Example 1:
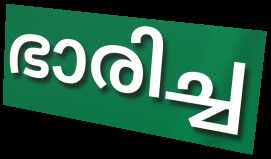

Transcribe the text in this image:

ഭാരിച്ച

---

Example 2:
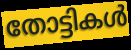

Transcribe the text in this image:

തോട്ടികൾ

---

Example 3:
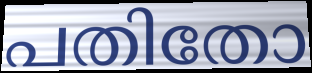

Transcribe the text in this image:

പതിതോ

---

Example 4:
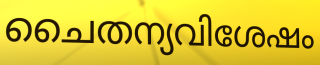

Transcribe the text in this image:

ചൈതന്യവിശേഷം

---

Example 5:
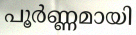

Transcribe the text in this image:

പൂർണ്ണമായി